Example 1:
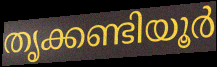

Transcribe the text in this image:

തൃക്കണ്ടിയൂർ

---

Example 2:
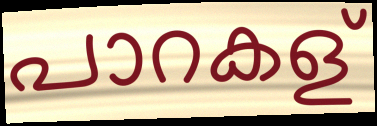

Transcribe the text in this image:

പാറകള്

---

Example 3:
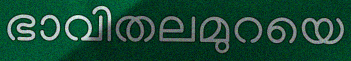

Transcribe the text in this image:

ഭാവിതലമുറയെ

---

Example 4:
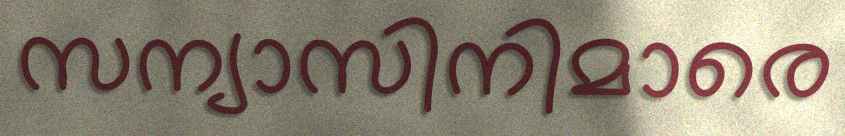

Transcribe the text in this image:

സന്യാസിനിമാരെ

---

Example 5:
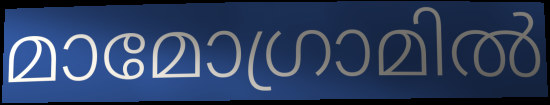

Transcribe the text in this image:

മാമോഗ്രാമിൽ